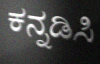
ಕನ್ನಡಿಸಿ